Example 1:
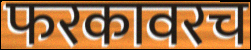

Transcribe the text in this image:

फरकावरच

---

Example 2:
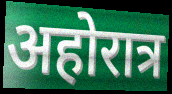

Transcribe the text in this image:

अहोरात्र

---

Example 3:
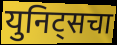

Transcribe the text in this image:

युनिट्सचा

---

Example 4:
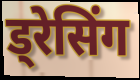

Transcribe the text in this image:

ड्रेसिंग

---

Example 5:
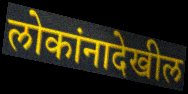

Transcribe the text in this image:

लोकांनादेखील